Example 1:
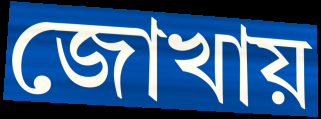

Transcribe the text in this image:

জোখায়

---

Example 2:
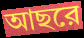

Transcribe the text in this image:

আছরে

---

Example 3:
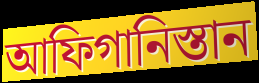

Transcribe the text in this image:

আফিগানিস্তান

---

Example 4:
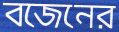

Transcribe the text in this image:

বজেনের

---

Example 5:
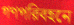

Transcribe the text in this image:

গণপরিবহনে